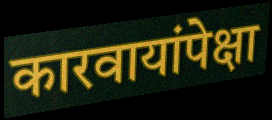
कारवायांपेक्षा